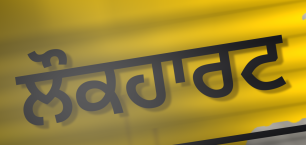
ਲੌਕਹਾਰਟ